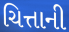
ચિત્તાની